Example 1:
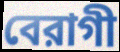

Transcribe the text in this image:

বেরাগী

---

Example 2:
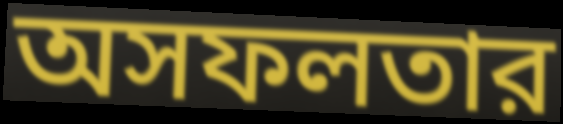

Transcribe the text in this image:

অসফলতার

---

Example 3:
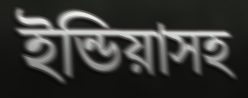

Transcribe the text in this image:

ইন্ডিয়াসহ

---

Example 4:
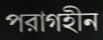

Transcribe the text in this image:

পরাগহীন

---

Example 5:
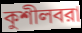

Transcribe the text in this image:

কুশীলবরা